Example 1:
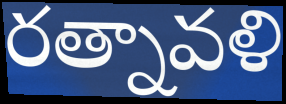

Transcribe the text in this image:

రత్నావళి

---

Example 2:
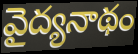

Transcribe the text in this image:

వైద్యనాథం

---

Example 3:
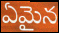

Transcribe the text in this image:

ఏమైన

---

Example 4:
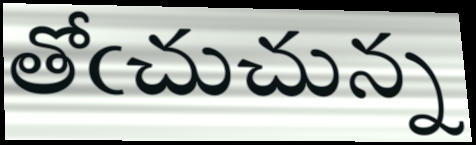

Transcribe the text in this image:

తోఁచుచున్న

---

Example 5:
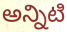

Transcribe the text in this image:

అన్నిటి